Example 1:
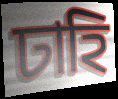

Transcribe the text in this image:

ঢাহি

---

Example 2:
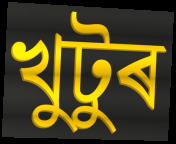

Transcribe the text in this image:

খুটুৰ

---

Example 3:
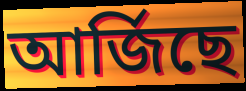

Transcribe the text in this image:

আৰ্জিছে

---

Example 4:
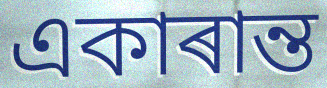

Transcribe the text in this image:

একাৰান্ত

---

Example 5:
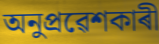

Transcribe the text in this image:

অনুপ্ৰৱেশকাৰী